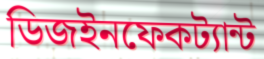
ডিজইনফেকট্যান্ট